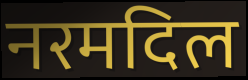
नरमदिल